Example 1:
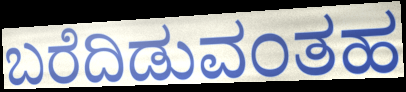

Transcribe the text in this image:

ಬರೆದಿಡುವಂತಹ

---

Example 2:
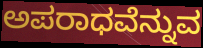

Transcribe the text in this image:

ಅಪರಾಧವೆನ್ನುವ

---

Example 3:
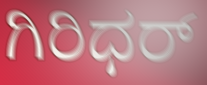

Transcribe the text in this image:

ಗಿರಿಧರ್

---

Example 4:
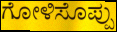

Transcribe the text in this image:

ಗೋಳಿಸೊಪ್ಪು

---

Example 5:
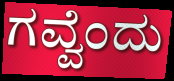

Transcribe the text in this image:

ಗವ್ವೆಂದು